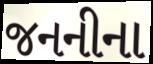
જનનીના